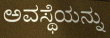
ಅವಸ್ಥೆಯನ್ನು